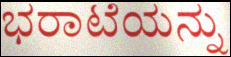
ಭರಾಟೆಯನ್ನು